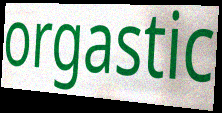
orgastic